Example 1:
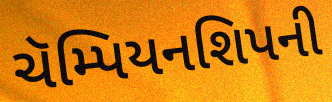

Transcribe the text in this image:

ચૅમ્પિયનશિપની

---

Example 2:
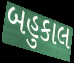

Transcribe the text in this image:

બહુકાલ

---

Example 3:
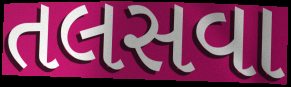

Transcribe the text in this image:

તલસવા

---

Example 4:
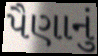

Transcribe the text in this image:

પૈણાનું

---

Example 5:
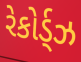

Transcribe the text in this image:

રેકોર્ડ્ઝ